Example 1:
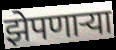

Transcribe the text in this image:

झेपणार्‍या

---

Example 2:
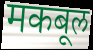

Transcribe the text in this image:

मकबूल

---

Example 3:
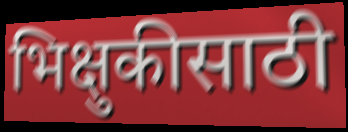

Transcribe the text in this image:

भिक्षुकीसाठी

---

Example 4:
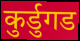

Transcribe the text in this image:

कुर्डुगड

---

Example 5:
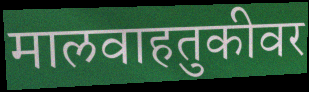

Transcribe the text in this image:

मालवाहतुकीवर